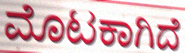
ಮೊಟಕಾಗಿದೆ